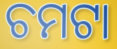
ଚମଟା